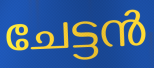
ചേട്ടൻ